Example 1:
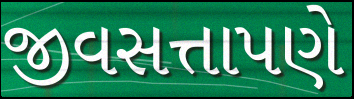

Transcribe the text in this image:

જીવસત્તાપણે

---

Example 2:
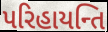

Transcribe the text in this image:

પરિહાયન્તિ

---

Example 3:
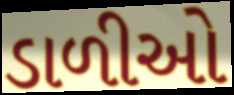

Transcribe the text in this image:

ડાળીઓ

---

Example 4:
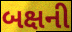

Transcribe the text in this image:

બક્ષની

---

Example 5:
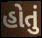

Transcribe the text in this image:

હોતું